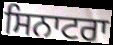
ਸਿਨਾਟਰਾ